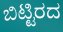
ಬಿಟ್ಟಿರದ